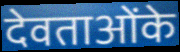
देवताओंके